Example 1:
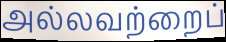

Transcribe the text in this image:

அல்லவற்றைப்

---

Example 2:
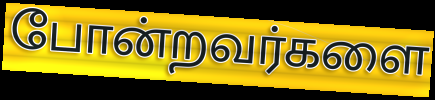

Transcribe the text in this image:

போன்றவர்களை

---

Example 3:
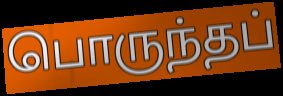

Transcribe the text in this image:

பொருந்தப்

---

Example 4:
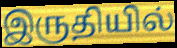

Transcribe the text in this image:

இருதியில்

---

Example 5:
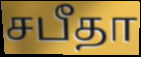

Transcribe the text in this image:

சபீதா